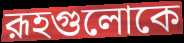
রূহগুলোকে